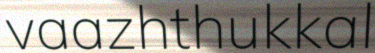
vaazhthukkal